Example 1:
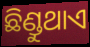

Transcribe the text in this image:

ଛିଣ୍ଡୁଥାଏ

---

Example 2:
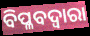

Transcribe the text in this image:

ବିପ୍ଳବଦ୍ୱାରା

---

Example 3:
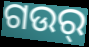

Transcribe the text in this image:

ଗଉର୍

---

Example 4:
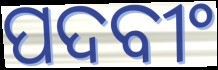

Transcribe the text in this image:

ପଦବୀଂ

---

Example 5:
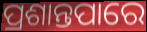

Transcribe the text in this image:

ପ୍ରଶାନ୍ତପାରେ